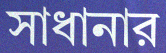
সাধানার